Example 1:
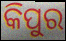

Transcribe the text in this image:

କିପୁର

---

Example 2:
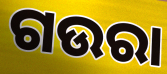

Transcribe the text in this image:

ଗଉରା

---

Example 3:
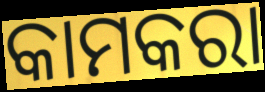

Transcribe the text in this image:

କାମକରା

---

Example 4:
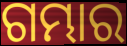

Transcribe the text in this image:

ଗମ୍ଭାର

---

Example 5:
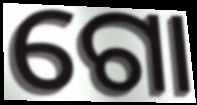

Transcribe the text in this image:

ଗୋ